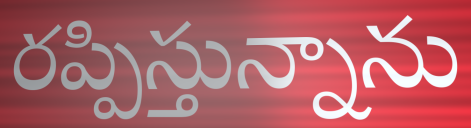
రప్పిస్తున్నాను